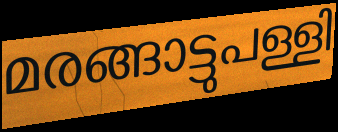
മരങ്ങാട്ടുപള്ളി